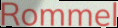
Rommel